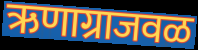
ऋणाग्राजवळ